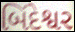
બિંદેશ્વર